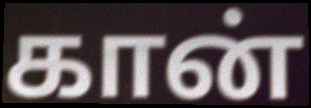
கான்